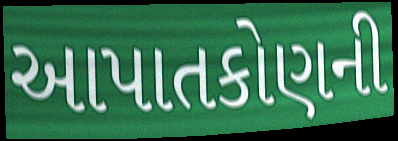
આપાતકોણની